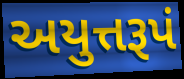
અયુત્તરૂપં